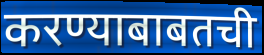
करण्याबाबतची